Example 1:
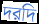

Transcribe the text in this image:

দরদি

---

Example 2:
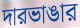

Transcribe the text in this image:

দারভাঙার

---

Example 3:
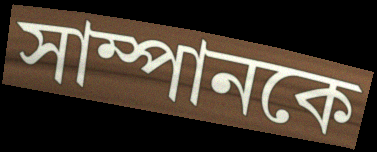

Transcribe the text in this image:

সাম্পানকে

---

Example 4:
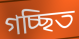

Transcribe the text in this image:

গচ্ছিত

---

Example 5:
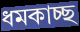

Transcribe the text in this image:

ধমকাচ্ছ